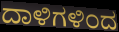
ದಾಳಿಗಳಿಂದ